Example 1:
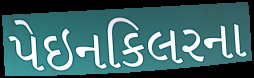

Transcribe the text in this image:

પેઇનકિલરના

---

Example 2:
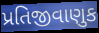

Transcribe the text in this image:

પ્રતિજીવાણુક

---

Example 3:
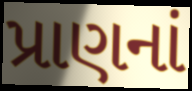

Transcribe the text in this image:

પ્રાણનાં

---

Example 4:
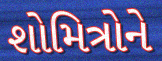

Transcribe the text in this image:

શોમિત્રોને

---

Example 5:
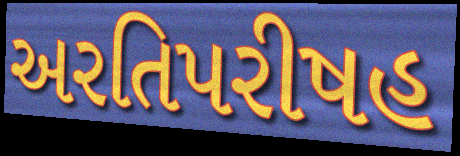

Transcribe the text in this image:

અરતિપરીષહ